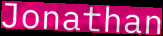
Jonathan